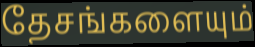
தேசங்களையும்